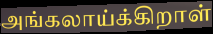
அங்கலாய்க்கிறாள்